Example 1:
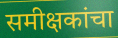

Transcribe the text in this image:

समीक्षकांचा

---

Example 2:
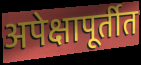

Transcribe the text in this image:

अपेक्षापूर्तीत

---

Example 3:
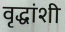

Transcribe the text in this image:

वृद्धांशी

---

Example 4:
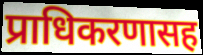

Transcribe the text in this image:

प्राधिकरणासह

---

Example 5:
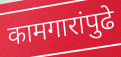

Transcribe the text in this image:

कामगारांपुढे